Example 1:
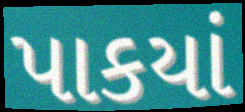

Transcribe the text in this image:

પાકયાં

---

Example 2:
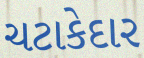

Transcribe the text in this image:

ચટાકેદાર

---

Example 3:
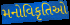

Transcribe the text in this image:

મનોવિકૃતિઓ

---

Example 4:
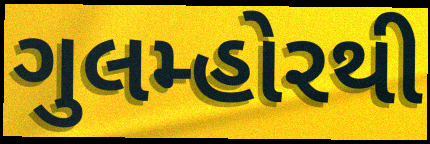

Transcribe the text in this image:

ગુલમ્હોરથી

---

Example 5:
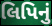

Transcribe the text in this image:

લિપિનું